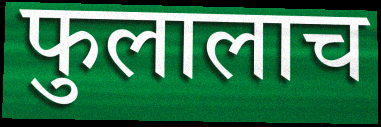
फुलालाच